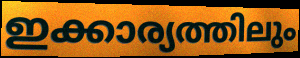
ഇക്കാര്യത്തിലും